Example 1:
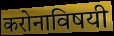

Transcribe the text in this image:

करोनाविषयी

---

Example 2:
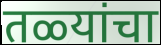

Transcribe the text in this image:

तळ्यांचा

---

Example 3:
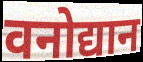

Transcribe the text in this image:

वनोद्यान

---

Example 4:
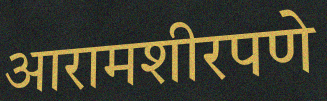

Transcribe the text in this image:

आरामशीरपणे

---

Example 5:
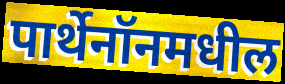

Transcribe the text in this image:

पार्थेनॉनमधील